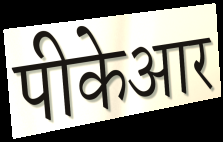
पीकेआर